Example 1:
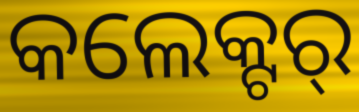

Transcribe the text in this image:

କଲେକ୍ଟର୍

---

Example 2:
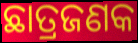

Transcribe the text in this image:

ଛାତ୍ରଜଣକ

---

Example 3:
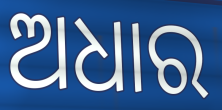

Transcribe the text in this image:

ଅଧାର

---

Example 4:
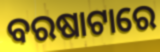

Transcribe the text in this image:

ବରଷାଟାରେ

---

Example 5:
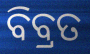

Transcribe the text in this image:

ବିବ୍ରତ